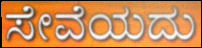
ಸೇವೆಯದು